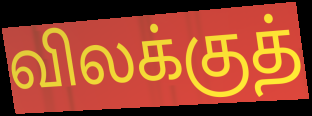
விலக்குத்